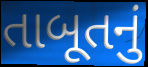
તાબૂતનું